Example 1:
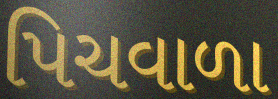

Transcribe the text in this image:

પિચવાળા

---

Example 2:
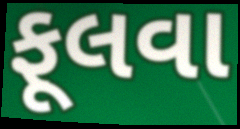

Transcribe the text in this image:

ફૂલવા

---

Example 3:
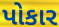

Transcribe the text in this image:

પોકાર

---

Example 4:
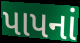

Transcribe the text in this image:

પાપનાં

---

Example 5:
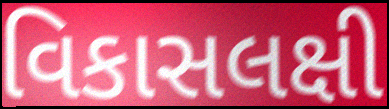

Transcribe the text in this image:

વિકાસલક્ષી